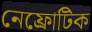
নেফ্রোটিক